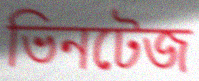
ভিনটেজ